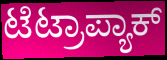
ಟೆಟ್ರಾಪ್ಯಾಕ್